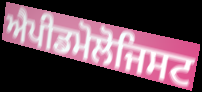
ਐਪੀਡਮੋਲੋਜਿਸਟ